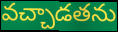
వచ్చాడతను